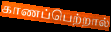
காணப்பெற்றால்